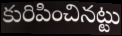
కురిపించినట్టు